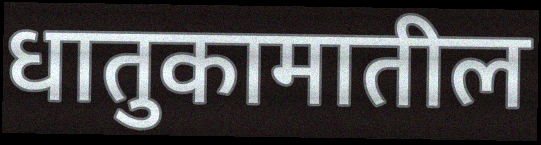
धातुकामातील